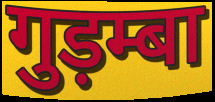
गुड़म्बा